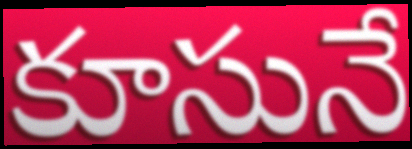
కూసునే